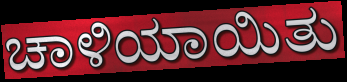
ಚಾಳಿಯಾಯಿತು